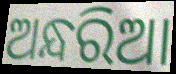
ଅନ୍ଧରିଆ